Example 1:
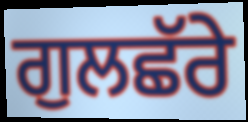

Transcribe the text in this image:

ਗੁਲਛੱਰੇ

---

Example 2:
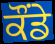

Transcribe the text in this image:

ਕੌਂਡੇ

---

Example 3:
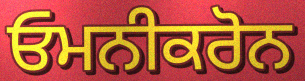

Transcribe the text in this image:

ਓਮਨੀਕਰੋਨ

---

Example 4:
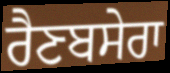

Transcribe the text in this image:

ਰੈਣਬਸੇਰਾ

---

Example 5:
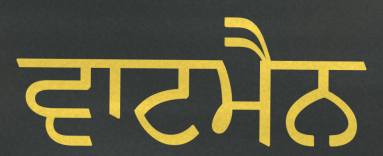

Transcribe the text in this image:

ਵਾਟਮੈਨ